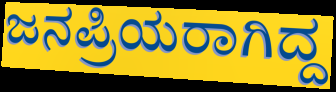
ಜನಪ್ರಿಯರಾಗಿದ್ದ